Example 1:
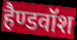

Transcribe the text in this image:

हैण्डवॉश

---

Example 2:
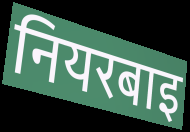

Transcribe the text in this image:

नियरबाइ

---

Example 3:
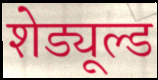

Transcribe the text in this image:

शेड्यूल्ड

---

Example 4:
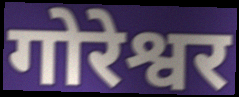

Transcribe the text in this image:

गोरेश्वर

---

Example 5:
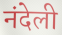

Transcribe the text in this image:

नंदेली